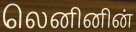
லெனினின்